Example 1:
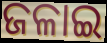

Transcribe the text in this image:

ଜଳାଇ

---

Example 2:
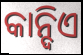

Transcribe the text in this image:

କାନ୍ଦିଏ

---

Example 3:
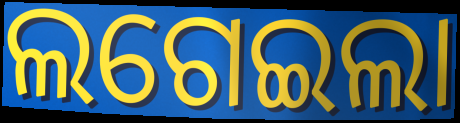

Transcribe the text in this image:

ଲଗେଇଲା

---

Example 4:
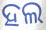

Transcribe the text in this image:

ହଲ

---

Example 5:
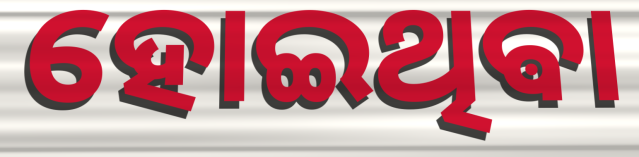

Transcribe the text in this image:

ହୋଇଥିଵା